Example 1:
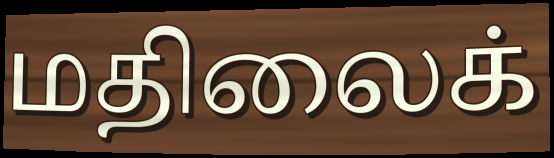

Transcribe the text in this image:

மதிலைக்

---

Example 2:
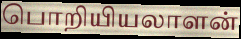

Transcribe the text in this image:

பொறியியலாளன்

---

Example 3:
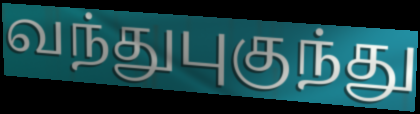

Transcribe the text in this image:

வந்துபுகுந்து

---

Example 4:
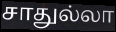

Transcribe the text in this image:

சாதுல்லா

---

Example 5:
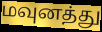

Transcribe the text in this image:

மவுனத்து